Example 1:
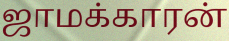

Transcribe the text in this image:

ஜாமக்காரன்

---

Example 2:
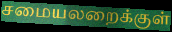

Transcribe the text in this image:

சமையலறைக்குள்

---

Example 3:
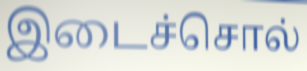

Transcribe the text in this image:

இடைச்சொல்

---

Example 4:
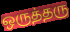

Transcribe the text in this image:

ஒருத்தரு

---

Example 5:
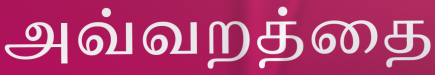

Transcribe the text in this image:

அவ்வறத்தை